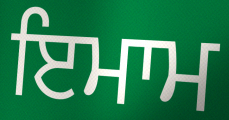
ਇਮਾਮ